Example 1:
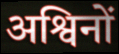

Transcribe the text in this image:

अश्विनों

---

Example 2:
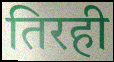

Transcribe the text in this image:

तिरही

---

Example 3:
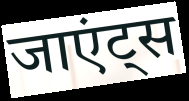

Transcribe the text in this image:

जाएंट्स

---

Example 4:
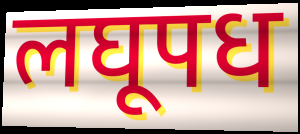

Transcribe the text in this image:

लघूपध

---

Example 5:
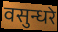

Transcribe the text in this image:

वसुन्धरे